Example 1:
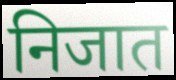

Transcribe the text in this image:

निजात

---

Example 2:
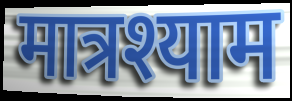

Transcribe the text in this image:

मात्रश्याम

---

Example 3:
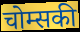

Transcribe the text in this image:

चोम्सकी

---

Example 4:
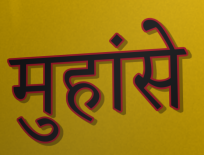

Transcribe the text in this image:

मुहांसे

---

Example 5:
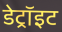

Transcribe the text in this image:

डेट्रॉइट